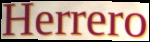
Herrero